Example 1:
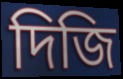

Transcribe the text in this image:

দিজি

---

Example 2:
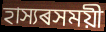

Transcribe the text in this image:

হাস্যৰসময়ী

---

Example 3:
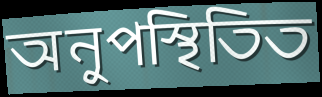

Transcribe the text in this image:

অনুপস্থিতিত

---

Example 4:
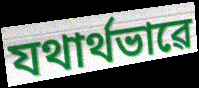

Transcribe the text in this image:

যথাৰ্থভাৱে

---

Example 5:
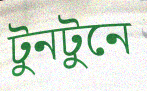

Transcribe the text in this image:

টুনটুনে